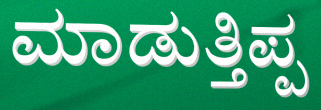
ಮಾಡುತ್ತಿಪ್ಪ